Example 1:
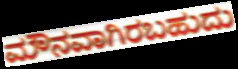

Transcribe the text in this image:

ಮೌನವಾಗಿರಬಹುದು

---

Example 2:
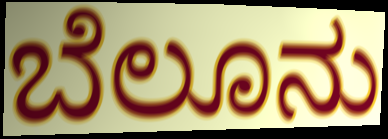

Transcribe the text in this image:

ಬೆಲೂನು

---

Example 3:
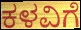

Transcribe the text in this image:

ಕಳವಿಗೆ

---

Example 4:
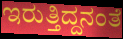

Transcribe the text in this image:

ಇರುತ್ತಿದ್ದನಂತೆ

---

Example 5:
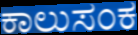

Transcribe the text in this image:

ಕಾಲುಸಂಕ